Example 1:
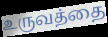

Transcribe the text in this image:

உருவத்தை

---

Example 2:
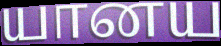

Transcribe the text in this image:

யானய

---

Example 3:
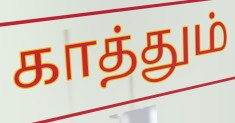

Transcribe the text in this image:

காத்தும்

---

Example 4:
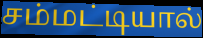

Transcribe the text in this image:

சம்மட்டியால்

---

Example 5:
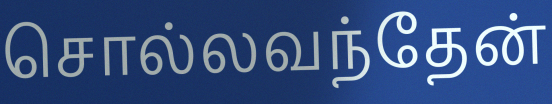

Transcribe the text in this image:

சொல்லவந்தேன்